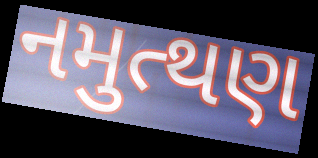
નમુત્થણ